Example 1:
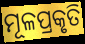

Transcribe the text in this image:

ମୂଳପ୍ରକୃତି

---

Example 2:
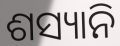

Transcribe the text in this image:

ଶସ୍ୟାନି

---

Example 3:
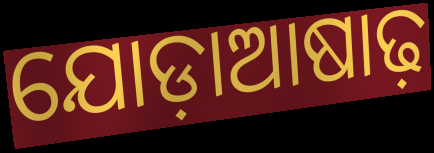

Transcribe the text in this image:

ଯୋଡ଼ାଆଷାଢ଼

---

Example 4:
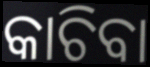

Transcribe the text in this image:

କାଚିବା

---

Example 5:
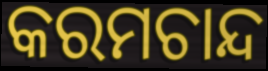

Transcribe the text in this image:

କରମଚାନ୍ଦ